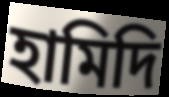
হামিদি